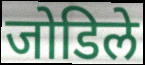
जोडिले